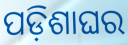
ପଡ଼ିଶାଘର